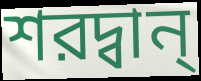
শরদ্বান্